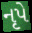
નૃપે